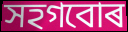
সহগবোৰ